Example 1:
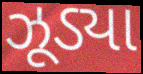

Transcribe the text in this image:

ઝૂડ્યા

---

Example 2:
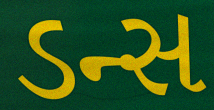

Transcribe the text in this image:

ડન્સ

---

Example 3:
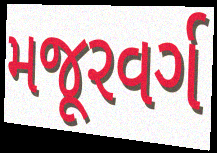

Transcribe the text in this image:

મજૂરવર્ગ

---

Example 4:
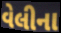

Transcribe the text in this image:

વેલીના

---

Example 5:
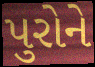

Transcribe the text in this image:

પુરોને